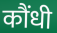
कौंधी